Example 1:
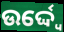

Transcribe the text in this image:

ଉର୍ଦ୍ଦ୍ୱେ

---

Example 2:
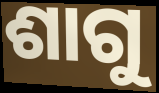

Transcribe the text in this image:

ଶାଗୁ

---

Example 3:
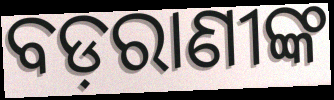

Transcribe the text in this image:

ବଡ଼ରାଣୀଙ୍କ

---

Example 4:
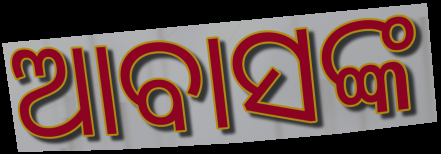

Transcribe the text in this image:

ଆବାସଙ୍କ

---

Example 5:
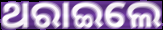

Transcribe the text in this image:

ଥରାଇଲେ